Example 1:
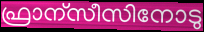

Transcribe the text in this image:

ഫ്രാന്സീസിനോടു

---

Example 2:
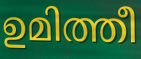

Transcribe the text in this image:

ഉമിത്തീ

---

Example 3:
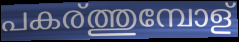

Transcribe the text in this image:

പകര്ത്തുമ്പോള്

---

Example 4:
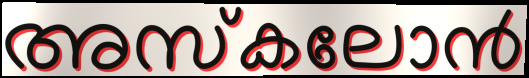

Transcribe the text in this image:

അസ്കലോൻ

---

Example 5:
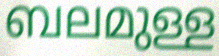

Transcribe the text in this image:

ബലമുള്ള